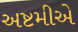
અષ્ટમીએ